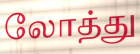
லோத்து